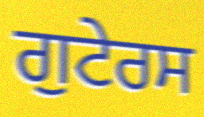
ਗੁਟੇਰਸ